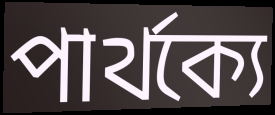
পার্থক্যে